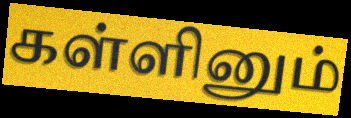
கள்ளினும்